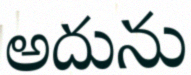
అదును